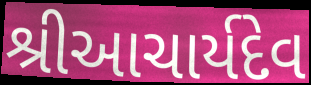
શ્રીઆચાર્યદેવ